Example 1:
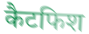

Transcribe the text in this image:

कैटफिश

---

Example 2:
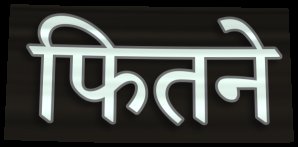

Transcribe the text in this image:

फितने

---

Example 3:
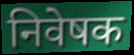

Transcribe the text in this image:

निवेषक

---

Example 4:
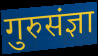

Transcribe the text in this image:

गुरुसंज्ञा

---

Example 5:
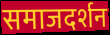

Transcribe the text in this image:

समाजदर्शन